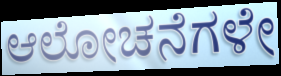
ಆಲೋಚನೆಗಳೇ